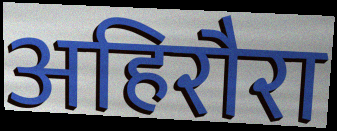
अहिरौरा